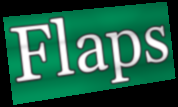
Flaps